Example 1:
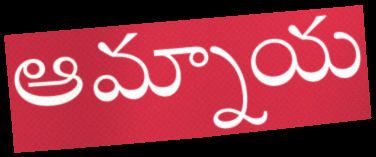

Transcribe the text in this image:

ఆమ్నాయ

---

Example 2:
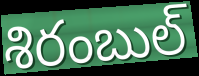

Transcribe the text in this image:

శిరంబుల్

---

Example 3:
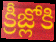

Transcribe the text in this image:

క్రీజ్లోకి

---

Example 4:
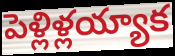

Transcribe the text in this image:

పెళ్లిళ్లయ్యాక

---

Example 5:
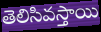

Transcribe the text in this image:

తెలిసివస్తాయి